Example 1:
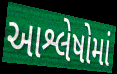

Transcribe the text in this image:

આશ્લેષોમાં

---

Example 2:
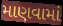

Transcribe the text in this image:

માણવામાં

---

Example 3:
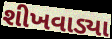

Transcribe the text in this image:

શીખવાડ્યા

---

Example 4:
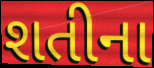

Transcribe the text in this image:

શતીના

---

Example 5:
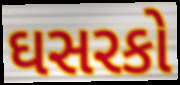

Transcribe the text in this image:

ઘસરકો